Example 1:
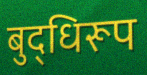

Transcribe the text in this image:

बुद्धिरूप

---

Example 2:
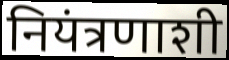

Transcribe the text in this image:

नियंत्रणाशी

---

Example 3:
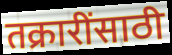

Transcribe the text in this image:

तक्रारींसाठी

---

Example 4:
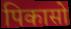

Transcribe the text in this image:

पिकासो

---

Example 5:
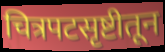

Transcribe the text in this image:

चित्रपटसृष्टीतून